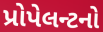
પ્રોપેલન્ટનો